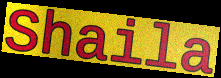
Shaila